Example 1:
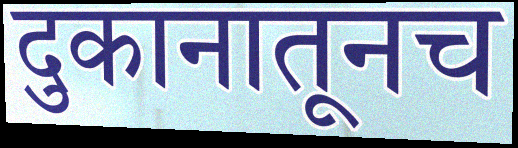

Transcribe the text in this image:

दुकानातूनच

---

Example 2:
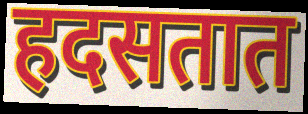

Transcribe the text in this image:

हदसतात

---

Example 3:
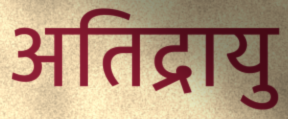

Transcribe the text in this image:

अतिद्रायु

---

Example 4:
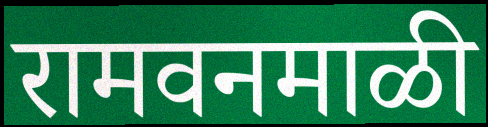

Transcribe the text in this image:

रामवनमाळी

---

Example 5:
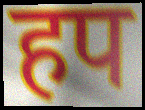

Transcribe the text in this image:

हप